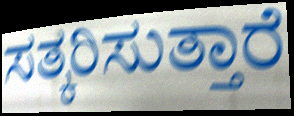
ಸತ್ಕರಿಸುತ್ತಾರೆ